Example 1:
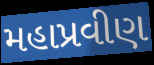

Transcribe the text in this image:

મહાપ્રવીણ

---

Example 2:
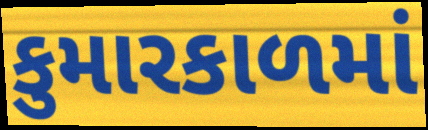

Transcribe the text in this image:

કુમારકાળમાં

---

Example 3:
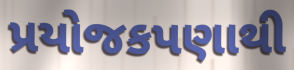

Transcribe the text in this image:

પ્રયોજકપણાથી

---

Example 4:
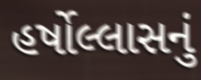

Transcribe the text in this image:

હર્ષોલ્લાસનું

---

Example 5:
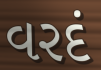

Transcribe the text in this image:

વરદં